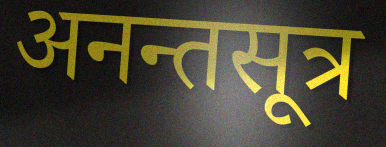
अनन्तसूत्र